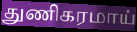
துணிகரமாய்